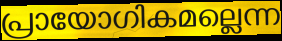
പ്രായോഗികമല്ലെന്ന